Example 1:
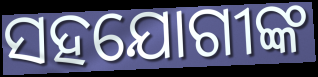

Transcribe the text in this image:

ସହଯୋଗୀଙ୍କ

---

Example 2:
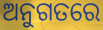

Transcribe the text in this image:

ଅନୁଗତରେ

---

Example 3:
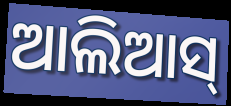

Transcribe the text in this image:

ଆଲିଆସ୍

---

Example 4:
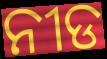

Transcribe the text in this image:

ନୀଡ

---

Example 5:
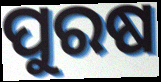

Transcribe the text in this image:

ପୁରଷ